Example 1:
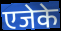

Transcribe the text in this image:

एजेके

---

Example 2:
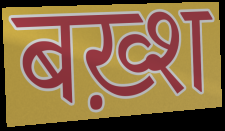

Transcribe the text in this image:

बख़्श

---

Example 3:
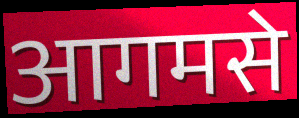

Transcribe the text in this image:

आगमसे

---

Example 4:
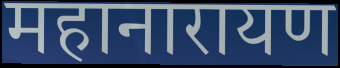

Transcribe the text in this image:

महानारायण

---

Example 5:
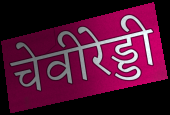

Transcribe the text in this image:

चेवीरेड्डी